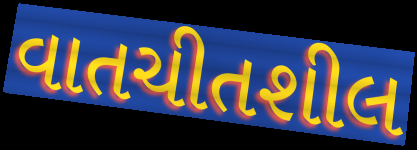
વાતચીતશીલ